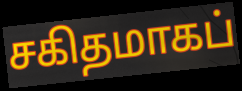
சகிதமாகப்